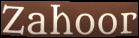
Zahoor